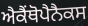
ਐਕੈਂਥੋਪੈਨੈਕਸ